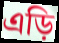
এড়ি